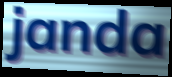
janda